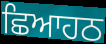
ਛਿਆਹਠ